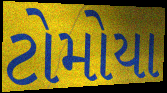
ટોમોયા